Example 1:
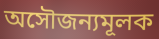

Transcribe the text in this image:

অসৌজন্যমূলক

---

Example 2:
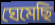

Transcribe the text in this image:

ঘেমেছি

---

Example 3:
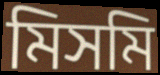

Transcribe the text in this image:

মিসমি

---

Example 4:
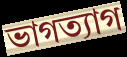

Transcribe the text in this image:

ভাগত্যাগ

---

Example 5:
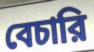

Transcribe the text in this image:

বেচারি